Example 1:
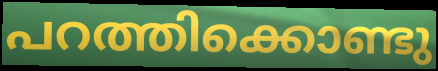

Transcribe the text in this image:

പറത്തിക്കൊണ്ടു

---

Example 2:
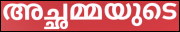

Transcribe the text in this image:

അച്ഛമ്മയുടെ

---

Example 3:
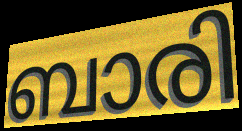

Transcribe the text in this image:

ബാരി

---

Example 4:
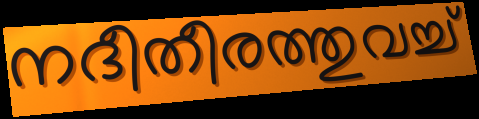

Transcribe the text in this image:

നദീതീരത്തുവച്ച്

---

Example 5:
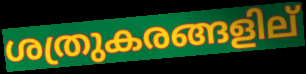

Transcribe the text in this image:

ശത്രുകരങ്ങളില്